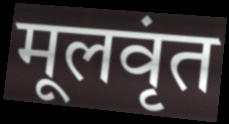
मूलवृंत